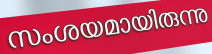
സംശയമായിരുന്നു